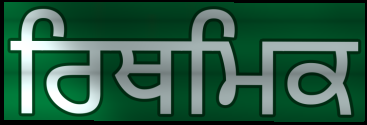
ਰਿਥਮਿਕ